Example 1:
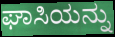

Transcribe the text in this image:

ಘಾಸಿಯನ್ನು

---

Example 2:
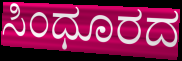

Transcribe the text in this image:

ಸಿಂಧೂರದ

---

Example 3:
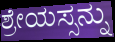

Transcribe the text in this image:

ಶ್ರೇಯಸ್ಸನ್ನು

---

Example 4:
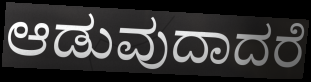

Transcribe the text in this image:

ಆಡುವುದಾದರೆ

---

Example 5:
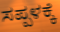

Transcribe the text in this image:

ಸಪ್ಪಳಕ್ಕೆ